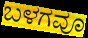
ಬಳಗವೂ